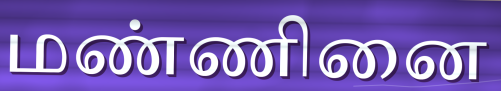
மண்ணினை